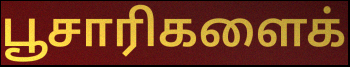
பூசாரிகளைக்